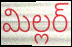
మిల్లర్